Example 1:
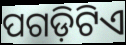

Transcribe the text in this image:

ପଗଡ଼ିଟିଏ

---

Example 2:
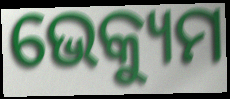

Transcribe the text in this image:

ଭେକ୍ୟୁମ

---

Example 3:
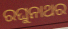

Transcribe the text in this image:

ରଘୁନାଥର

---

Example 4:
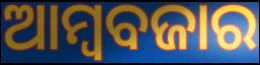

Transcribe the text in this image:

ଆମ୍ୱବଜାର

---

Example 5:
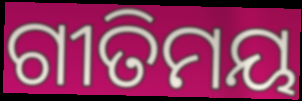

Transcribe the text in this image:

ଗୀତିମୟ